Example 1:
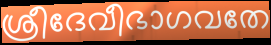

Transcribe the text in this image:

ശ്രീദേവീഭാഗവതേ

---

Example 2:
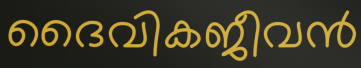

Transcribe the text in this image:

ദൈവികജീവൻ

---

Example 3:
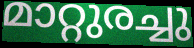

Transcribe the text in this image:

മാറ്റുരച്ചു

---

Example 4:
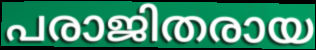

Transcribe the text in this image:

പരാജിതരായ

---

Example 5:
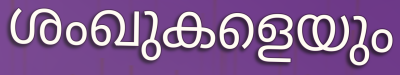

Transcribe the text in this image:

ശംഖുകളെയും